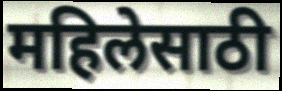
महिलेसाठी